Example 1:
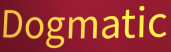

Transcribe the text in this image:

Dogmatic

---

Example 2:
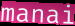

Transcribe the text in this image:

manai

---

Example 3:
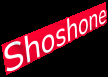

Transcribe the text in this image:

Shoshone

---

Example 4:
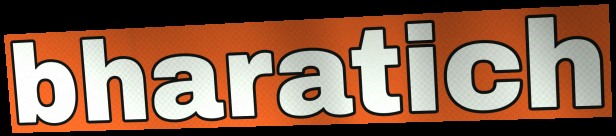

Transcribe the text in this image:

bharatich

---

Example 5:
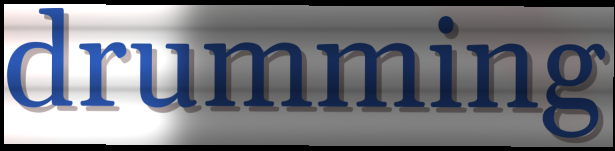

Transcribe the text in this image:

drumming